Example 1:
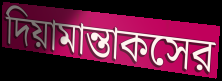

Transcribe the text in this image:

দিয়ামান্তাকসের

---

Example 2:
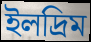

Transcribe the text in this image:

ইলদ্রিম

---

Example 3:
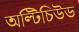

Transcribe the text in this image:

অল্টিচিউড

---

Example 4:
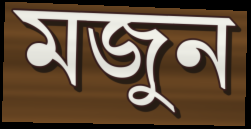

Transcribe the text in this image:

মজুন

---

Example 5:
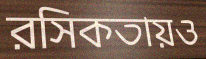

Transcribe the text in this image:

রসিকতায়ও